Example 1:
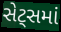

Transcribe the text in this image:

સેટ્સમાં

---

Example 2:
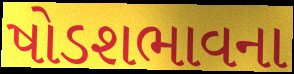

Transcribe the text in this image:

ષોડશભાવના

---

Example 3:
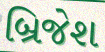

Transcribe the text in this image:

બ્રિજેશ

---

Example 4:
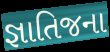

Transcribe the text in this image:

જ્ઞાતિજના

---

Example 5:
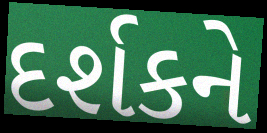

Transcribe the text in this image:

દર્શકને